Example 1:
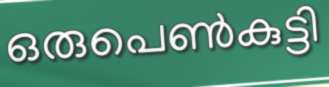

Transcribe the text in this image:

ഒരുപെൺകുട്ടി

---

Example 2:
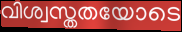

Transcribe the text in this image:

വിശ്വസ്തതയോടെ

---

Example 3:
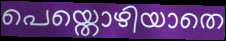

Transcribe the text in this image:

പെയ്തൊഴിയാതെ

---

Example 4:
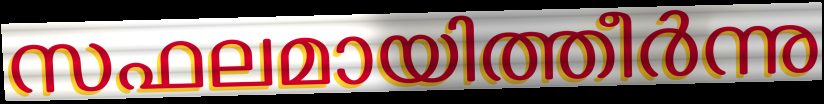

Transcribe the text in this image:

സഫലമായിത്തീർന്നു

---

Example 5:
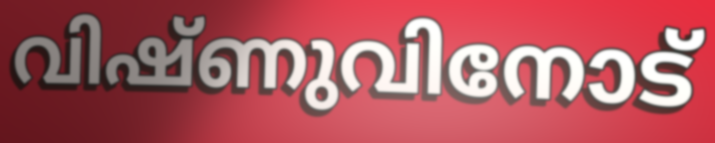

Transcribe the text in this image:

വിഷ്ണുവിനോട്